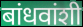
बांधवांशी